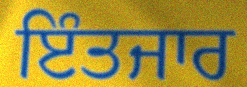
ਇੰਤਜਾਰ